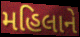
મહિલાને